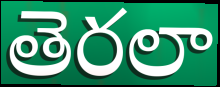
తెరలా